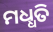
ମଧ୍ଧତି